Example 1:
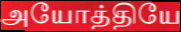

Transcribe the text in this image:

அயோத்தியே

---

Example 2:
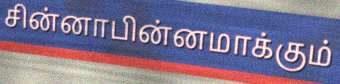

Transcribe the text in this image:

சின்னாபின்னமாக்கும்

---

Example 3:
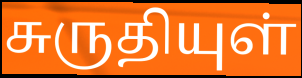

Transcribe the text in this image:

சுருதியுள்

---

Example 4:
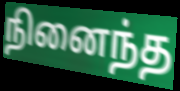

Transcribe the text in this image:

நினைந்த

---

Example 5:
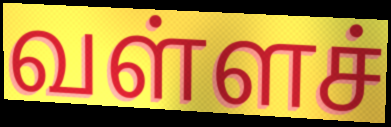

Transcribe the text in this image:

வள்ளச்